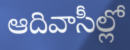
ఆదివాసీల్లో